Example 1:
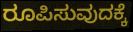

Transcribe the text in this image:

ರೂಪಿಸುವುದಕ್ಕೆ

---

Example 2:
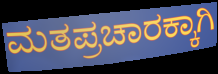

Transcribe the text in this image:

ಮತಪ್ರಚಾರಕ್ಕಾಗಿ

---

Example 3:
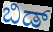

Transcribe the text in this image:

ಬಿಡ್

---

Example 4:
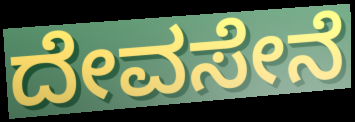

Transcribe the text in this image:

ದೇವಸೇನೆ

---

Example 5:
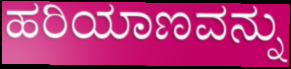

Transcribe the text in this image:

ಹರಿಯಾಣವನ್ನು